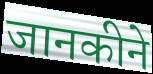
जानकीने